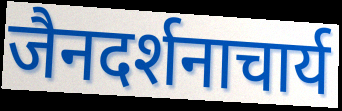
जैनदर्शनाचार्य